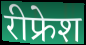
रीफ्रेश